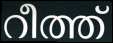
റീത്ത്